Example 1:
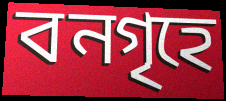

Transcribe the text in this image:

বনগৃহে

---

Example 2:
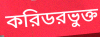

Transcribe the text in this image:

করিডরভুক্ত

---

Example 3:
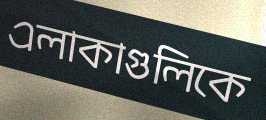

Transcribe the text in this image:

এলাকাগুলিকে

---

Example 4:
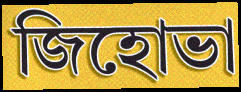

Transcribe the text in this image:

জিহোভা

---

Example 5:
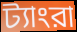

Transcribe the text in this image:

ট্যাংরা